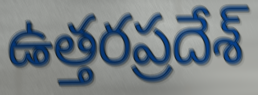
ఉత్తరప్రదేశ్